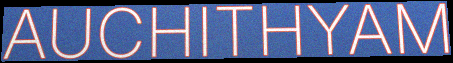
AUCHITHYAM